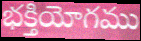
భక్తియోగము